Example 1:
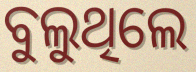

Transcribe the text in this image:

ବୁଲୁଥିଲେ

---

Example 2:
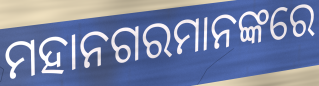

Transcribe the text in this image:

ମହାନଗରମାନଙ୍କରେ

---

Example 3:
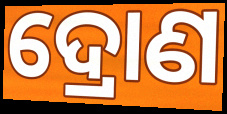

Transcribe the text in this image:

ଦ୍ରୋଣ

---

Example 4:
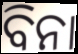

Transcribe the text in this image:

ବିନା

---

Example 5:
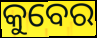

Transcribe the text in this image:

କୁବେର